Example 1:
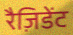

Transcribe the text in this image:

रैज़िडेंट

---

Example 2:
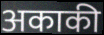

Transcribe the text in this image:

अकाकी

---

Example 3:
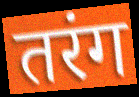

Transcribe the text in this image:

तरंग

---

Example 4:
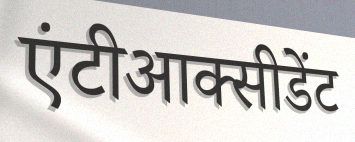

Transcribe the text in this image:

एंटीआक्सीडेंट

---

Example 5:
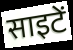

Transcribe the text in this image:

साइटें